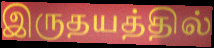
இருதயத்தில்